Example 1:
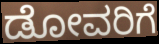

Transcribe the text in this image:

ಡೋವರಿಗೆ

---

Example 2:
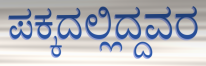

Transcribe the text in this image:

ಪಕ್ಕದಲ್ಲಿದ್ದವರ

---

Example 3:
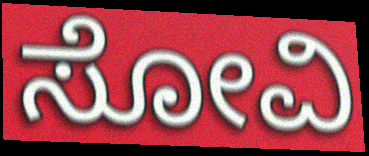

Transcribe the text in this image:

ಸೋವಿ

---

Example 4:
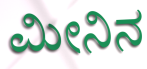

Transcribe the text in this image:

ಮೀನಿನ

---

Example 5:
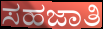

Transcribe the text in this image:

ಸಹಜಾತಿ